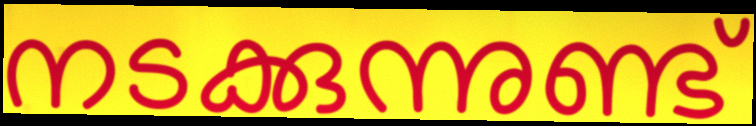
നടക്കുന്നുണ്ട്